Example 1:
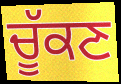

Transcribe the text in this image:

ਚੂੱਕਣ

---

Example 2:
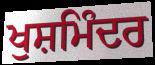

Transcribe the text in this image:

ਖੁਸ਼ਮਿੰਦਰ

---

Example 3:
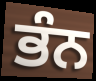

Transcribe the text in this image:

ਭੰਨ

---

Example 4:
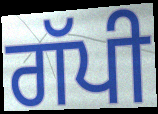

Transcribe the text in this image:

ਗੱਪੀ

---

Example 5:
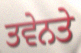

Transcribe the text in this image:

ਤਵੇਨਤੇ